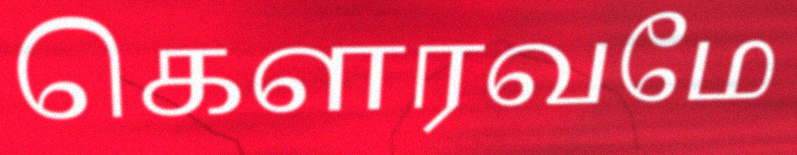
கௌரவமே